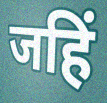
जहिं